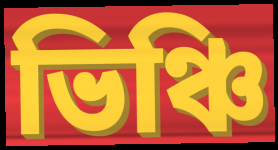
ভিঞ্চি